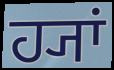
ਹ੍ਯਾਂ